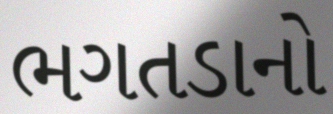
ભગતડાનો